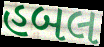
હબલ